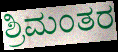
ಶ್ರಿಮಂತರ